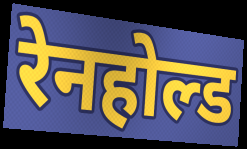
रेनहोल्ड